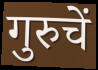
गुरुचें